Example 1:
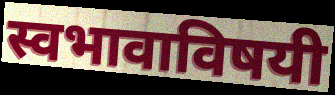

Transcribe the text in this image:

स्वभावाविषयी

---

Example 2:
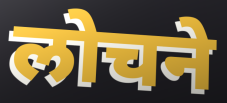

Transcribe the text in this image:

लोचने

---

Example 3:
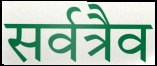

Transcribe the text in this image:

सर्वत्रैव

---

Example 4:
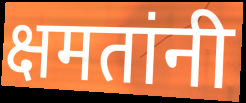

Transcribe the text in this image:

क्षमतांनी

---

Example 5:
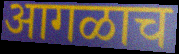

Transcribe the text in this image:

आगळाच